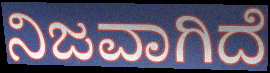
ನಿಜವಾಗಿದೆ